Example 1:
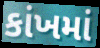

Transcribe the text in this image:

કાંખમાં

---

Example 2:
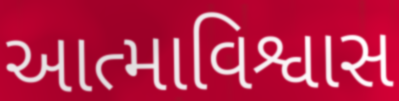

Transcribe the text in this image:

આત્માવિશ્વાસ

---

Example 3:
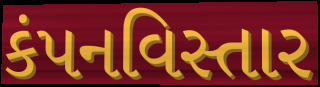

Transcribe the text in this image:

કંપનવિસ્તાર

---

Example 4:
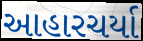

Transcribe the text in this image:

આહારચર્યા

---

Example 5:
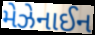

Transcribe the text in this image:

મેઝેનાઈન